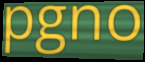
pgno